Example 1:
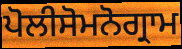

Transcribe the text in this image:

ਪੋਲੀਸੋਮਨੋਗ੍ਰਾਮ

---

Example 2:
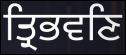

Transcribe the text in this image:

ਤ੍ਰਿਭਵਣਿ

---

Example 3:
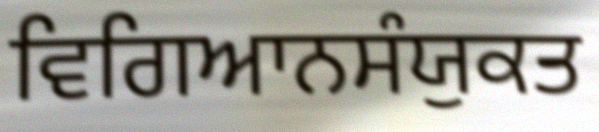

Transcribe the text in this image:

ਵਿਗਿਆਨਸੰਯੁਕਤ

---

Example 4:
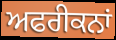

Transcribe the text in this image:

ਅਫਰੀਕਨਾਂ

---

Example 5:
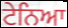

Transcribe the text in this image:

ਟੇਨਿਆ